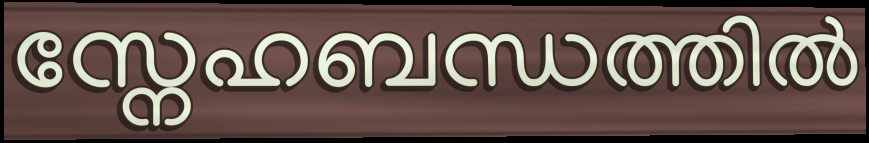
സ്നേഹബന്ധത്തിൽ